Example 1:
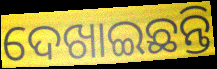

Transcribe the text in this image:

ଦେଖାଇଛନ୍ତି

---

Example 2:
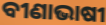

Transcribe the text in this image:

ବୀଣାଭାଷୀ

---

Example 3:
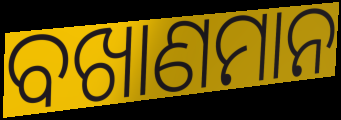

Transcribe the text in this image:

ବଖାଣମାନ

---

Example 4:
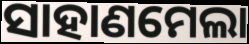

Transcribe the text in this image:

ସାହାଣମେଲା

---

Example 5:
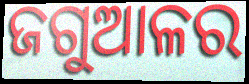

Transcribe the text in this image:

ଜଗୁଆଳର